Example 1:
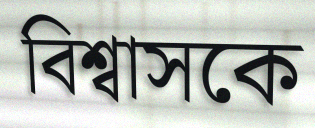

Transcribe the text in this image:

বিশ্বাসকে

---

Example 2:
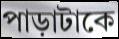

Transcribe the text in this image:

পাড়াটাকে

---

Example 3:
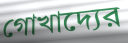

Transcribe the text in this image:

গোখাদ্যের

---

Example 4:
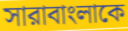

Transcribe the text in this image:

সারাবাংলাকে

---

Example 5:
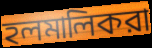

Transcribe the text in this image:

হলমালিকরা